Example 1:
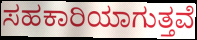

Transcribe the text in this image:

ಸಹಕಾರಿಯಾಗುತ್ತವೆ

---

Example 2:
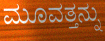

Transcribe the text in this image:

ಮೂವತ್ತನ್ನು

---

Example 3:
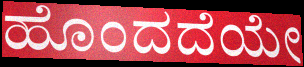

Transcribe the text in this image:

ಹೊಂದದೆಯೇ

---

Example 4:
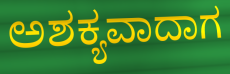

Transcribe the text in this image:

ಅಶಕ್ಯವಾದಾಗ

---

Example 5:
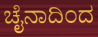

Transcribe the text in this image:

ಚೈನಾದಿಂದ